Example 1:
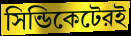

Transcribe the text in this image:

সিন্ডিকেটেরই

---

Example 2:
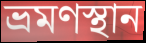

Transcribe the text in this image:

ভ্রমণস্থান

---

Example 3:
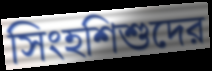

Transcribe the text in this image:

সিংহশিশুদের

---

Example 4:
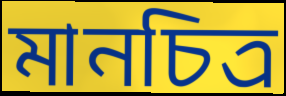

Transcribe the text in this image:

মানচিত্র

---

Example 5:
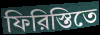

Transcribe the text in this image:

ফিরিস্তিতে